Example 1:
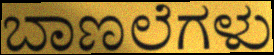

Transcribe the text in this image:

ಬಾಣಲೆಗಳು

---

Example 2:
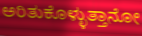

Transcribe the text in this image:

ಅರಿತುಕೊಳ್ಳುತ್ತಾನೋ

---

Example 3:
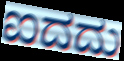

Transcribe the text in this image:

ಐದದು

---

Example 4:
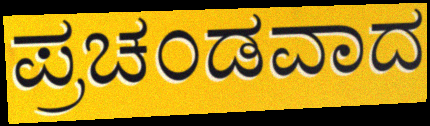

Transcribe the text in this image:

ಪ್ರಚಂಡವಾದ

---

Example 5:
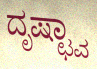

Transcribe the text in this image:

ದೃಷ್ಟ್ವಾ